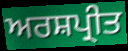
ਅਰਸ਼ਪ੍ਰੀਤ